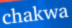
chakwa